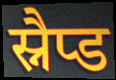
स्नैप्ड